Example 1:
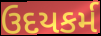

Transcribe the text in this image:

ઉદયકર્મ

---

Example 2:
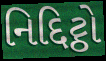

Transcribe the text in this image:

નિદ્દિટ્ઠો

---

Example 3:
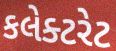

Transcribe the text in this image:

કલેક્ટરેટ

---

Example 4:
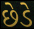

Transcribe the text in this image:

છેડે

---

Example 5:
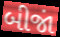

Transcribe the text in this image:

બીજાં